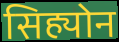
सिह्योन